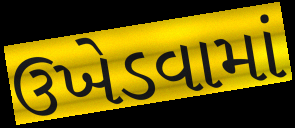
ઉખેડવામાં